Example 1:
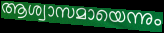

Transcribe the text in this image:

ആശ്വാസമായെന്നും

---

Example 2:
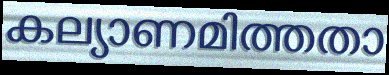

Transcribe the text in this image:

കല്യാണമിത്തതാ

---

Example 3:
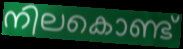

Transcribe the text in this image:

നിലകൊണ്ട്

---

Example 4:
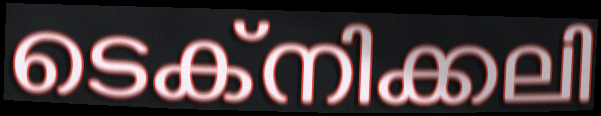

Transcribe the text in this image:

ടെക്‌നിക്കലി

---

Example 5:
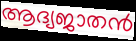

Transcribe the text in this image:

ആദ്യജാതൻ